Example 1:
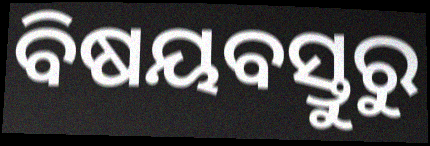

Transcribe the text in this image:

ବିଷୟବସ୍ତୁରୁ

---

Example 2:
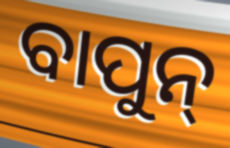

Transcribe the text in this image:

ବାପୁନ୍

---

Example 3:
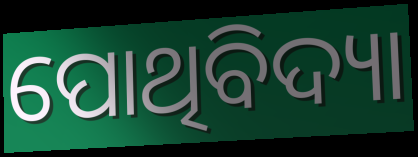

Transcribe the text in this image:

ପୋଥିବିଦ୍ୟା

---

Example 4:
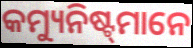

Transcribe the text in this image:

କମ୍ୟୁନିଷ୍ଟ୍‌ମାନେ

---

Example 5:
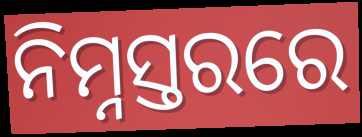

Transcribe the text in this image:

ନିମ୍ନସ୍ତରରେ